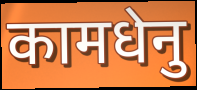
कामधेनु